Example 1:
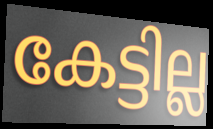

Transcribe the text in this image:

കേട്ടില്ല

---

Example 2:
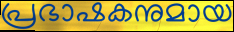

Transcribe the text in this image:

പ്രഭാഷകനുമായ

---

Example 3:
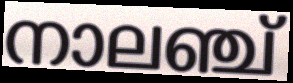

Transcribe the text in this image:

നാലഞ്ച്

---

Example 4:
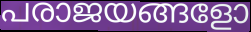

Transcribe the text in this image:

പരാജയങ്ങളോ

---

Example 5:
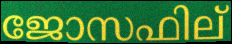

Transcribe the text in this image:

ജോസഫില്